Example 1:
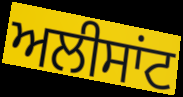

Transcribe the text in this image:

ਅਲੀਸਾਂਟ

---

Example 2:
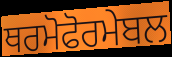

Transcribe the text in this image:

ਥਰਮੋਫੋਰਮੇਬਲ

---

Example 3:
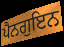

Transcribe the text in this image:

ਪੈਨਗੁਇਨ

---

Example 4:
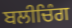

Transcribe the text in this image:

ਬਲੀਚਿੰਗ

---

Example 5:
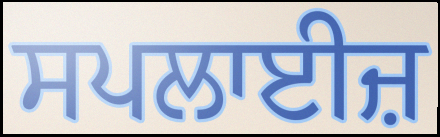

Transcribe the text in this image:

ਸਪਲਾਈਜ਼